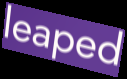
leaped